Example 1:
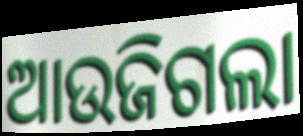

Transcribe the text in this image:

ଆଉଜିଗଲା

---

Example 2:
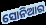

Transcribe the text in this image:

ସୋନିଆର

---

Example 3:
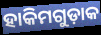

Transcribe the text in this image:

ହାକିମଗୁଡ଼ାକ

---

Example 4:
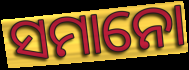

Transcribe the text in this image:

ସମାନୋ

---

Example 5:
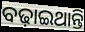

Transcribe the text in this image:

ବଢ଼ାଇଥାନ୍ତି